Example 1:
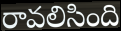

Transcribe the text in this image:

రావలిసింది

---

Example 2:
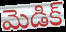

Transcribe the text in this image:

మెడిక్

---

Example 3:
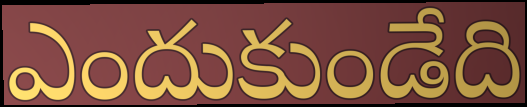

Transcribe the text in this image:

ఎందుకుండేది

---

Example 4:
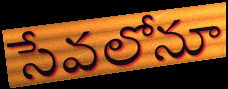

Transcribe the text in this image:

సేవలోనూ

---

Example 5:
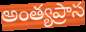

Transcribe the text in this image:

అంత్యప్రాస